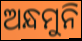
ଅନ୍ଧମୁନି